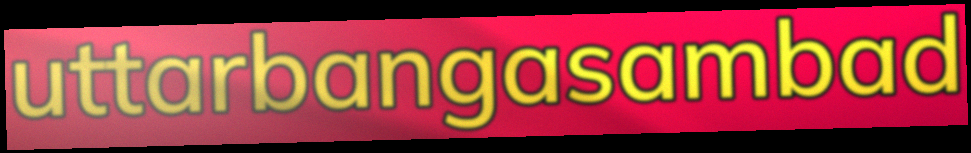
uttarbangasambad